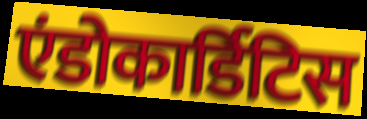
एंडोकार्डिटिस